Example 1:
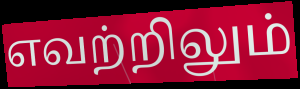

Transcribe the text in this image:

எவற்றிலும்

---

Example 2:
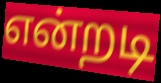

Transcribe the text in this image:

என்றடி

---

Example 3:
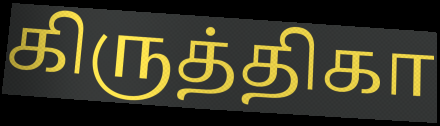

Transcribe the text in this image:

கிருத்திகா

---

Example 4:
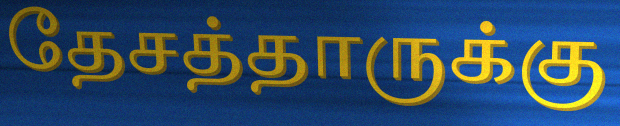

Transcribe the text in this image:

தேசத்தாருக்கு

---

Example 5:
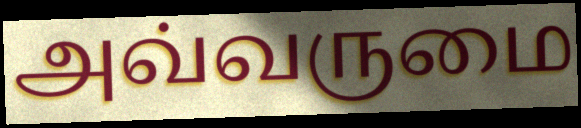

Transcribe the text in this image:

அவ்வருமை